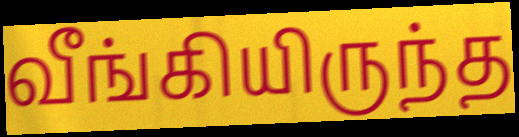
வீங்கியிருந்த